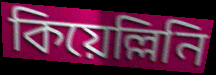
কিয়েল্লিনি